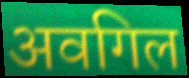
अवगिल